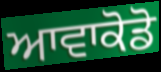
ਆਵਾਕੋਡੋ